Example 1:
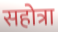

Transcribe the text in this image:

सहोत्रा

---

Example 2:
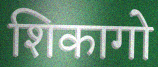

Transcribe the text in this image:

शिकागो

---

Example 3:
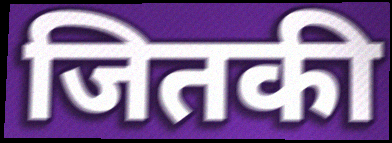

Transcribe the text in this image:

जितकी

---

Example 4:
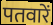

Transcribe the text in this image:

पतवारें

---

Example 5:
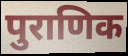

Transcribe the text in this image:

पुराणिक